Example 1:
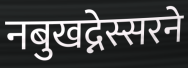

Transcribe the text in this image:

नबुखद्नेस्सरने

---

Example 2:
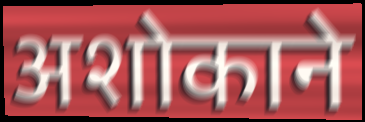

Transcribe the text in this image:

अशोकाने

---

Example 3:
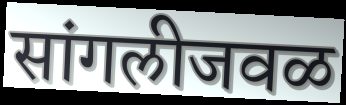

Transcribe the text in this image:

सांगलीजवळ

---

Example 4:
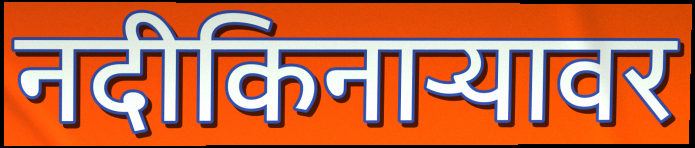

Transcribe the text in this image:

नदीकिनाऱ्यावर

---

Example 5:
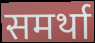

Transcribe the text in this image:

समर्था